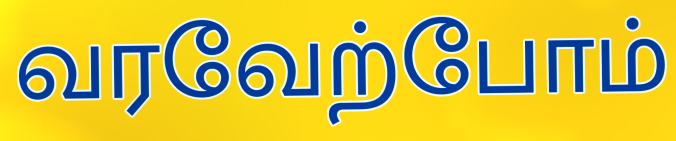
வரவேற்போம்